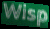
Wisp